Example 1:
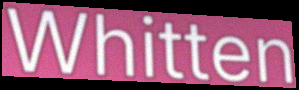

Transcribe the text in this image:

Whitten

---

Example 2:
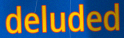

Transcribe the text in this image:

deluded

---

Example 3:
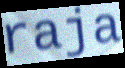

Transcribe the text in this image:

raja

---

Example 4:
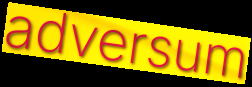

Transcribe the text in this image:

adversum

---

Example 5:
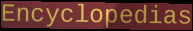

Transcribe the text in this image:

Encyclopedias